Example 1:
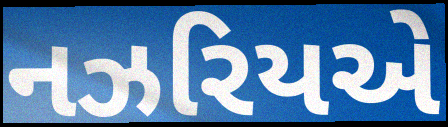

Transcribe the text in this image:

નઝરિયએ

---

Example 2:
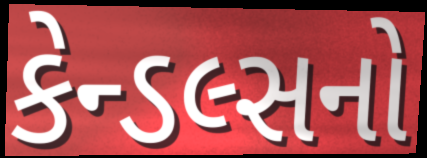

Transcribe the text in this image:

કેન્ડલ્સનો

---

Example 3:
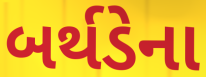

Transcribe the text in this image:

બર્થડેના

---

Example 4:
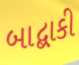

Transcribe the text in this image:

બાદ્બાકી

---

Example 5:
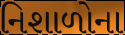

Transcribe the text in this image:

નિશાળોના